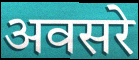
अवसरे